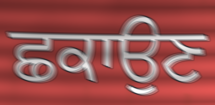
ਛਕਾਉਣ